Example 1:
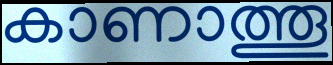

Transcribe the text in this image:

കാണാത്തൂ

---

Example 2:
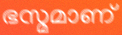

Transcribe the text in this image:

ഭസ്മമാണ്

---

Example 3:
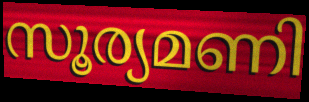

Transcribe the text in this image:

സൂര്യമണി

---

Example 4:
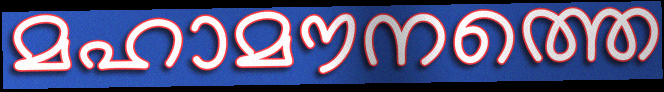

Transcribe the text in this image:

മഹാമൗനത്തെ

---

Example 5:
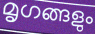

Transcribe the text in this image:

മൃഗങ്ങളും